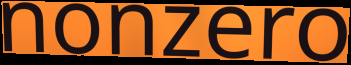
nonzero